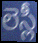
లెస్లీ